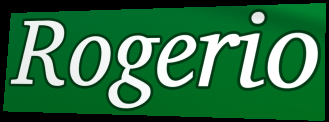
Rogerio